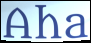
Aha